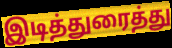
இடித்துரைத்து